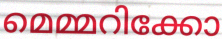
മെമ്മറിക്കോ